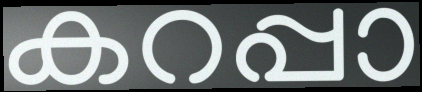
കറപ്പാ